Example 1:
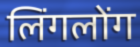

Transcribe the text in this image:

लिंगलोंग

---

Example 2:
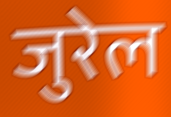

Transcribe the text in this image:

जुरेल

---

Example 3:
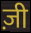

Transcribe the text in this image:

ज़ी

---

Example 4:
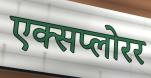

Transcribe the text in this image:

एक्सप्लोरर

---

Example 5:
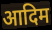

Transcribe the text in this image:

आदिम